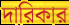
দারিকার